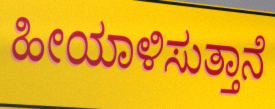
ಹೀಯಾಳಿಸುತ್ತಾನೆ